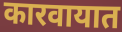
कारवायात